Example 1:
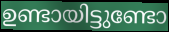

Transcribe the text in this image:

ഉണ്ടായിട്ടുണ്ടോ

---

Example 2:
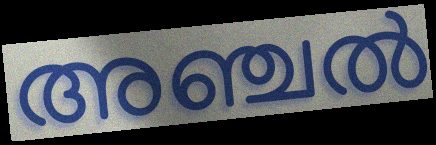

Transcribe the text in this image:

അഞ്ചൽ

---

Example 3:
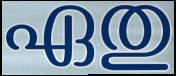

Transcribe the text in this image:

ഏതു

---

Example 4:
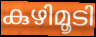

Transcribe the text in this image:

കുഴിമൂടി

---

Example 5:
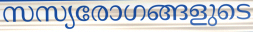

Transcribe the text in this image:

സസ്യരോഗങ്ങളുടെ